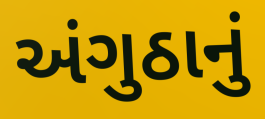
અંગુઠાનું